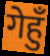
गेहुँ